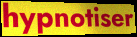
hypnotiser